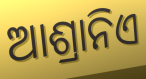
ଆଶ୍ରାନିଏ